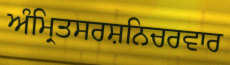
ਅੰਮ੍ਰਿਤਸਰਸ਼ਨਿਚਰਵਾਰ